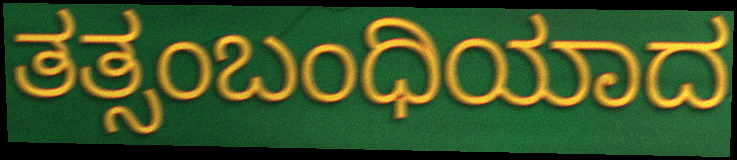
ತತ್ಸಂಬಂಧಿಯಾದ